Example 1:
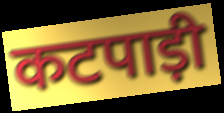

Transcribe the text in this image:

कटपाड़ी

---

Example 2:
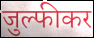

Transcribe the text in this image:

जुल्फीकर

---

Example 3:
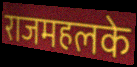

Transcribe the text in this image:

राजमहलके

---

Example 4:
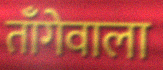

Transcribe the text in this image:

ताँगेवाला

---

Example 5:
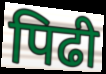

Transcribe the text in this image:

पिढी